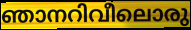
ഞാനറിവീലൊരു